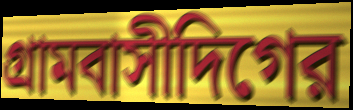
গ্রামবাসীদিগের